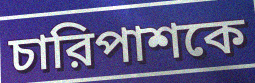
চারিপাশকে